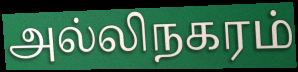
அல்லிநகரம்